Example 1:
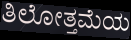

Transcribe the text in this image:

ತಿಲೋತ್ತಮೆಯ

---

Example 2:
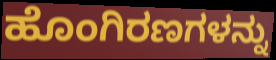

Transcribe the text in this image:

ಹೊಂಗಿರಣಗಳನ್ನು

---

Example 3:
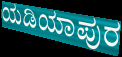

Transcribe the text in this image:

ಯಡಿಯಾಪುರ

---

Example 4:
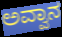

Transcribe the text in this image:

ಅವ್ವಾನ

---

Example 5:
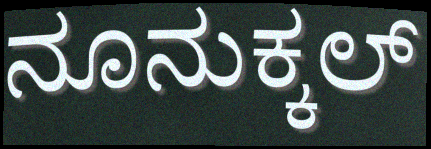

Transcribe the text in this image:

ನೂನುಕ್ಕಲ್